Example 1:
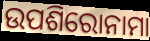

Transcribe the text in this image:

ଉପଶିରୋନାମା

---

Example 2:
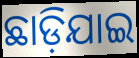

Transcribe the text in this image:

ଛାଡ଼ିଯାଇ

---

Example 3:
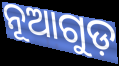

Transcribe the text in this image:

ନୂଆଗୁଡ଼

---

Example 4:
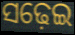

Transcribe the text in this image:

ସଢ଼େଇ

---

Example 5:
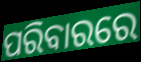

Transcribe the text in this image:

ପରିବାରରେ